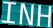
INH